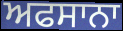
ਅਫਸਾਨਾ